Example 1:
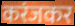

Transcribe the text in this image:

करंजकर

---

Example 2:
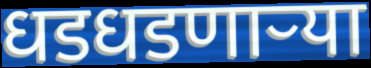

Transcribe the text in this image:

धडधडणाऱ्या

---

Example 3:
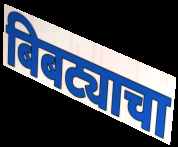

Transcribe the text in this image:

बिबट्याचा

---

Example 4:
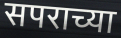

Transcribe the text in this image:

सपराच्या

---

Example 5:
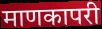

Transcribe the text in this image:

माणकापरी